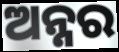
ଅନ୍ନର